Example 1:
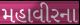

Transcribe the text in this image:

મહાવીરના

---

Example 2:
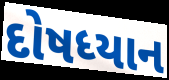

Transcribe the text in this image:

દોષધ્યાન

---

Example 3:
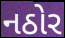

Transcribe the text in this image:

નઠોર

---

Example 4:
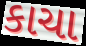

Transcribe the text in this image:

કાચા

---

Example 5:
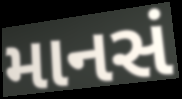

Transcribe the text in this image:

માનસં